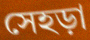
সেহড়া